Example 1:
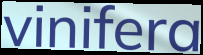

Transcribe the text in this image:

vinifera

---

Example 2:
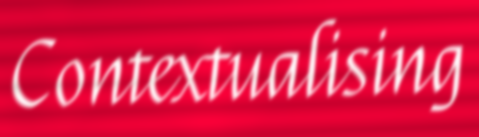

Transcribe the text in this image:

Contextualising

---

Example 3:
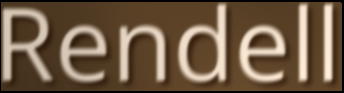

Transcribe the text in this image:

Rendell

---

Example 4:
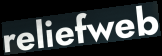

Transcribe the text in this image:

reliefweb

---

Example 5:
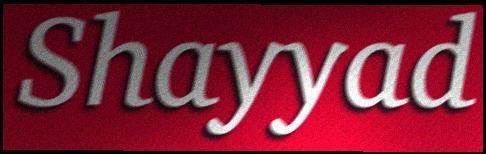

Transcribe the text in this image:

Shayyad